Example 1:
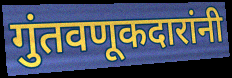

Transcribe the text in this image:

गुंतवणूकदारांनी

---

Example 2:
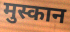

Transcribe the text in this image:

मुस्कान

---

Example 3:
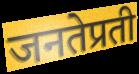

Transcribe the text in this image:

जनतेप्रती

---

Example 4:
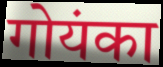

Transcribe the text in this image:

गोयंका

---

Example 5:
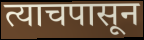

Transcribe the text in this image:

त्याचपासून